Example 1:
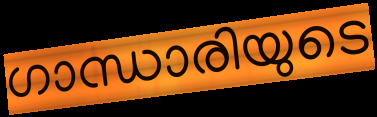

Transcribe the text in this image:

ഗാന്ധാരിയുടെ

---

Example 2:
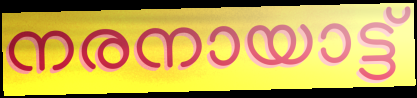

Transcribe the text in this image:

നരനായാട്ട്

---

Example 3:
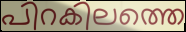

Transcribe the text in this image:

പിറകിലത്തെ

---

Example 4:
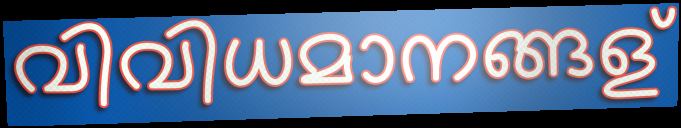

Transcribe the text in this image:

വിവിധമാനങ്ങള്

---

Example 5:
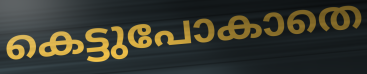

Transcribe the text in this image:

കെട്ടുപോകാതെ